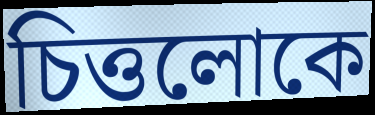
চিত্তলোকে